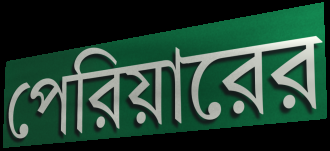
পেরিয়ারের